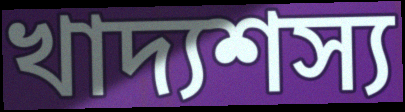
খাদ্যশস্য